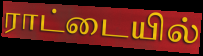
ராட்டையில்